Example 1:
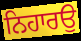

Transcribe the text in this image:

ਨਿਹਾਰਉ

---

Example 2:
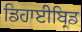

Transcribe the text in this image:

ਡਿਹਾਈਬ੍ਰਿਡ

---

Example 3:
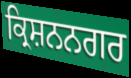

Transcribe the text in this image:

ਕ੍ਰਿਸ਼ਨਨਗਰ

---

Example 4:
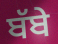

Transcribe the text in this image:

ਬੱਬੇ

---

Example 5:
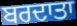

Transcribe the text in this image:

ਬਰਦਾਤਾ